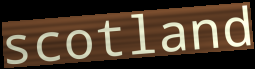
scotland